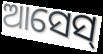
ଆସେସ୍